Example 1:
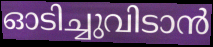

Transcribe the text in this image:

ഓടിച്ചുവിടാൻ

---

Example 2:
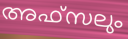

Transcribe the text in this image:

അഫ്സലും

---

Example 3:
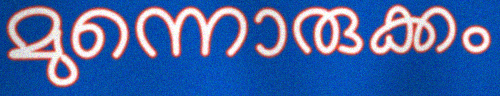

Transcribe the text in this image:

മുന്നൊരുക്കം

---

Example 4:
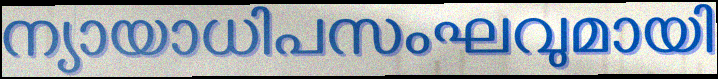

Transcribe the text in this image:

ന്യായാധിപസംഘവുമായി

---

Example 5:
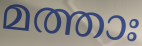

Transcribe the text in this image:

മത്താഃ